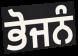
ਭੋਜਨੰ